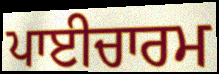
ਪਾਈਚਾਰਮ